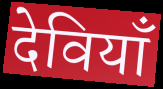
देवियाँ